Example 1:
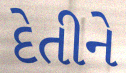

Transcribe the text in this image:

દેતીને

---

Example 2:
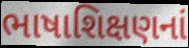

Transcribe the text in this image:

ભાષાશિક્ષણનાં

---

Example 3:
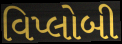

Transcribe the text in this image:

વિપ્લોબી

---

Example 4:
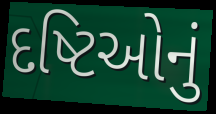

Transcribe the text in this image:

દષ્ટિઓનું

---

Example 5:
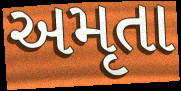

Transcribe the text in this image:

અમૃતા